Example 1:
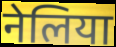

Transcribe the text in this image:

नेलिया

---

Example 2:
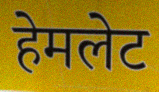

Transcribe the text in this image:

हेमलेट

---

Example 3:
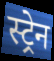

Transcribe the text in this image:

स्ट्रेन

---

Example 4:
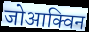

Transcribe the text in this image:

जोआक्विन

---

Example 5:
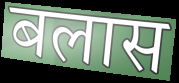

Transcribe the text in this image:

बलास